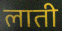
लाती